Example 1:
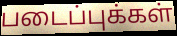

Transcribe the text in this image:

படைப்புக்கள்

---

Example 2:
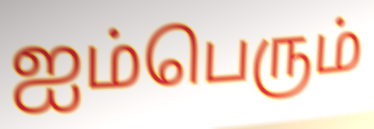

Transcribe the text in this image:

ஐம்பெரும்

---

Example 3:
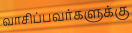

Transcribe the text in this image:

வாசிப்பவர்களுக்கு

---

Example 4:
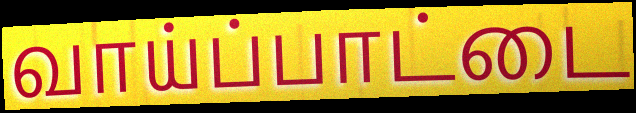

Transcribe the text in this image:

வாய்ப்பாட்டை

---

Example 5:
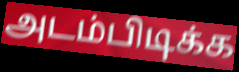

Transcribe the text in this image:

அடம்பிடிக்க